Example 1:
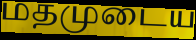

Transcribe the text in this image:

மதமுடைய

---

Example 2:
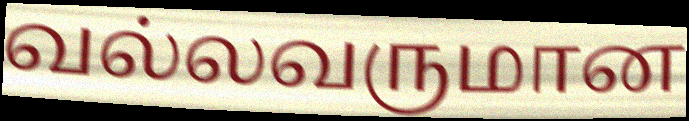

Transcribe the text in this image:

வல்லவருமான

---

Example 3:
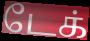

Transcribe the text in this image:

டேக்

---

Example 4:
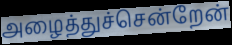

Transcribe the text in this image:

அழைத்துச்சென்றேன்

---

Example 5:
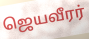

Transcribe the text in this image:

ஜெயவீரர்